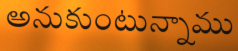
అనుకుంటున్నాము